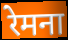
रेमना